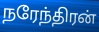
நரேந்திரன்